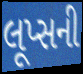
લૂપ્સની